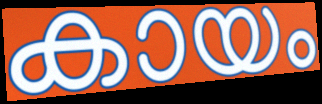
കായം